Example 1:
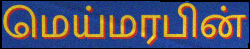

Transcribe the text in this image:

மெய்மரபின்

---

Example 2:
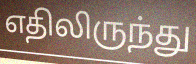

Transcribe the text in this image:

எதிலிருந்து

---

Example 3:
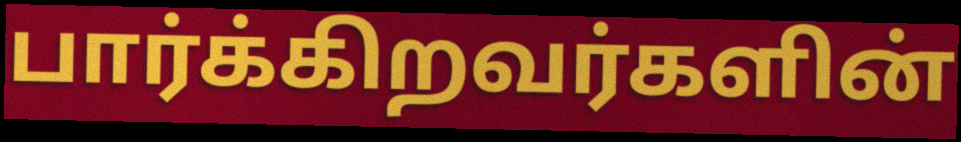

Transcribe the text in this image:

பார்க்கிறவர்களின்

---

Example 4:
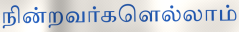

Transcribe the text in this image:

நின்றவர்களெல்லாம்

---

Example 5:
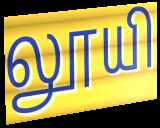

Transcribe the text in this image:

லூயி